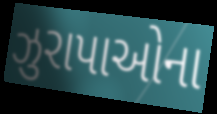
ઝુરાપાઓના